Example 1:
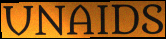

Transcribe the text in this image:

UNAIDS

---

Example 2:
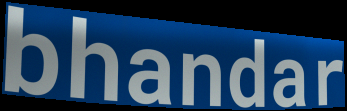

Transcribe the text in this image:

bhandar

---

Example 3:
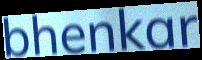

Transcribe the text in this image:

bhenkar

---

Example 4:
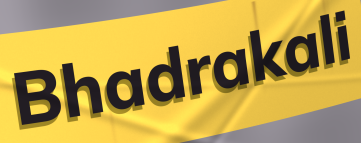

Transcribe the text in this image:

Bhadrakali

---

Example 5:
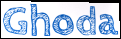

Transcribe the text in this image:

Ghoda